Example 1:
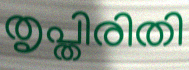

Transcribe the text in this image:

തൃപ്തിരിതി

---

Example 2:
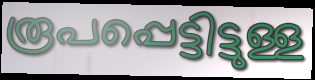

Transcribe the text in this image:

രൂപപ്പെട്ടിട്ടുള്ള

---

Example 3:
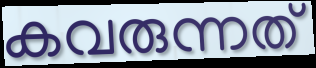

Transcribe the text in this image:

കവരുന്നത്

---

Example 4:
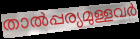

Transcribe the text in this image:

താൽപ്പര്യമുള്ളവർ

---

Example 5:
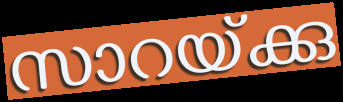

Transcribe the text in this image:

സാറയ്‌ക്കു